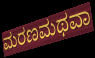
ಮರಣಮಥವಾ